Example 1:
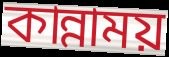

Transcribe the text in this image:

কান্নাময়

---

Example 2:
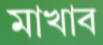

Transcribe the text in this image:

মাখাব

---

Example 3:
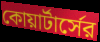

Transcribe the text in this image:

কোয়ার্টার্সের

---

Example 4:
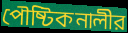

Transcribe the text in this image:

পৌষ্টিকনালীর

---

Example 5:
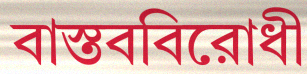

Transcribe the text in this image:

বাস্তববিরোধী